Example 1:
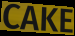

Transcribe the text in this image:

CAKE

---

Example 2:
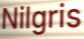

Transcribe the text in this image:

Nilgris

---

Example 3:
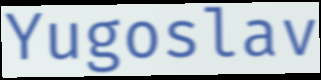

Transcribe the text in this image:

Yugoslav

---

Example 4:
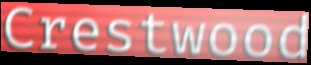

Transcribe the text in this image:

Crestwood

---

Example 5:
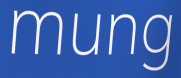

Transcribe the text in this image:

mung